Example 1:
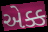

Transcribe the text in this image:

એક્ક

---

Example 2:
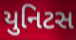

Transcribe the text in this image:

યુનિટસ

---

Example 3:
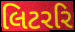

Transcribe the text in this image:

લિટરરિ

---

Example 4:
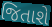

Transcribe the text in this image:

જિતાશે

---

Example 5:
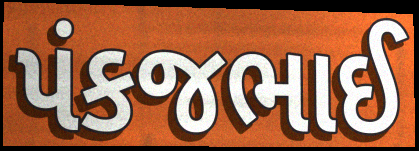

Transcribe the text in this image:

પંકજભાઈ